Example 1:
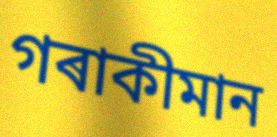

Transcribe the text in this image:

গৰাকীমান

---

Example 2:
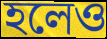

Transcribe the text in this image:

হলেও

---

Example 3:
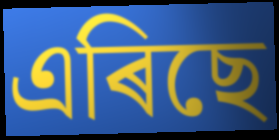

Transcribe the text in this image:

এৰিছে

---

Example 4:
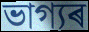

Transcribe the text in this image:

ভাগ্যৰ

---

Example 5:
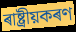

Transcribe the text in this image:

ৰাষ্ট্ৰীয়কৰণ